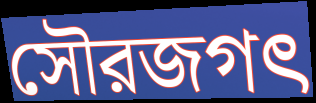
সৌরজগৎ